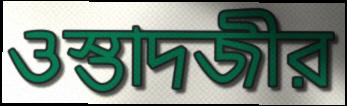
ওস্তাদজীর